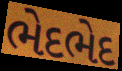
ભેદભેદ